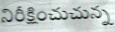
నిరీక్షించుచున్న